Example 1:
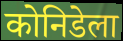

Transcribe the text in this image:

कोनिडेला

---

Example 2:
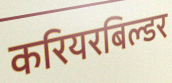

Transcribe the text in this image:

करियरबिल्डर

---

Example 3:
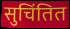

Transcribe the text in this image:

सुचिंतित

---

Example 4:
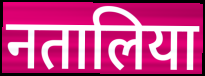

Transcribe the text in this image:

नतालिया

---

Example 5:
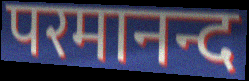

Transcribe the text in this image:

परमानन्द